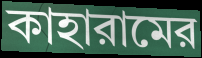
কাহারামের